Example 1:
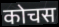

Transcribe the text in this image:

कोचस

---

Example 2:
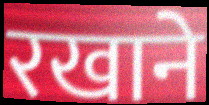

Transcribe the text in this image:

रखाने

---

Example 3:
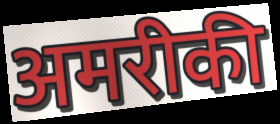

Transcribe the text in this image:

अमरीकी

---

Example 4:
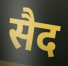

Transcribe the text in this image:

सैद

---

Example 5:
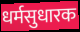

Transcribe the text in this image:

धर्मसुधारक